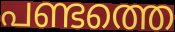
പണ്ടത്തെ